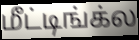
மீட்டிங்க்ல